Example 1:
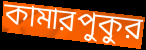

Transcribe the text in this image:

কামারপুকুর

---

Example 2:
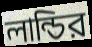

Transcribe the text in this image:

লান্ডির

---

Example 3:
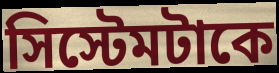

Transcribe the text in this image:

সিস্টেমটাকে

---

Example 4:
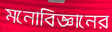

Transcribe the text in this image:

মনোবিজ্ঞানের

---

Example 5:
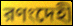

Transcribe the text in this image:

রণংদেহী